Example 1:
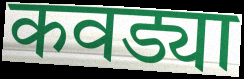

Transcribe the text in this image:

कवड्या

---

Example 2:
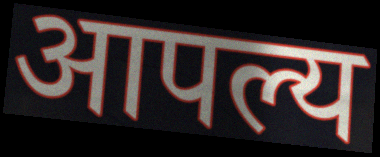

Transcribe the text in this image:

आपल्य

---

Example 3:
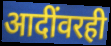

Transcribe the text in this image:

आदींवरही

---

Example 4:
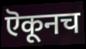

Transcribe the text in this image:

ऎकूनच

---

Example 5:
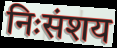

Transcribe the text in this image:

निःसंशय